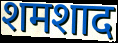
शमशाद